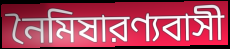
নৈমিষারণ্যবাসী